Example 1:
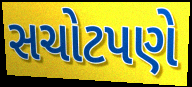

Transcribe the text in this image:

સચોટપણે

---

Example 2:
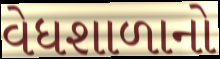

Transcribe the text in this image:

વેધશાળાનો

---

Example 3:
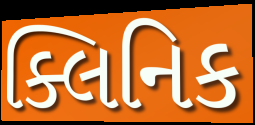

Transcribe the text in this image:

ક્લિનિક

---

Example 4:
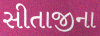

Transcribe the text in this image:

સીતાજીના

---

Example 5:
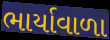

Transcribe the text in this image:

ભાર્યાવાળા